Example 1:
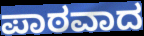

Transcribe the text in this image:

ಪಾಠವಾದ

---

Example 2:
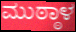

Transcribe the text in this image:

ಮುಠ್ಠಾಳ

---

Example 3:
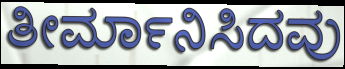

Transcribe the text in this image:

ತೀರ್ಮಾನಿಸಿದವು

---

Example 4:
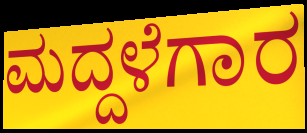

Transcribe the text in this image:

ಮದ್ದಳೆಗಾರ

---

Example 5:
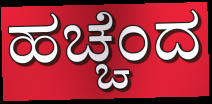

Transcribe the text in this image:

ಹಚ್ಚೆಂದ